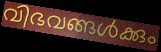
വിഭവങ്ങൾക്കും